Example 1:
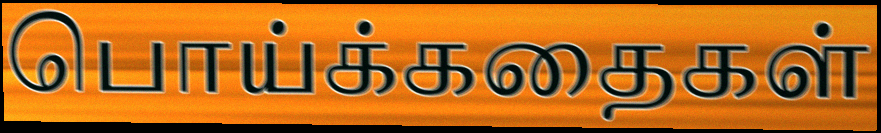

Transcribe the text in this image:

பொய்க்கதைகள்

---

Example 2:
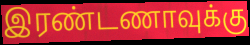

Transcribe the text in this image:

இரண்டணாவுக்கு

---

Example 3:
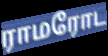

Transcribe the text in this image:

ராமரோட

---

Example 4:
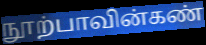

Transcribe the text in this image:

நூற்பாவின்கண்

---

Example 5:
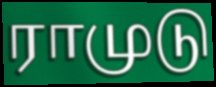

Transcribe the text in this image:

ராமுடு